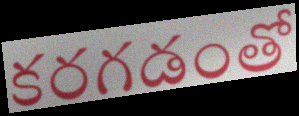
కరగడంతో